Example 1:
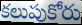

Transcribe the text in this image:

కలుపుకోరు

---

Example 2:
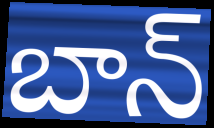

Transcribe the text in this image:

బాన్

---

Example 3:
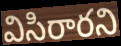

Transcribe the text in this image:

విసిరారని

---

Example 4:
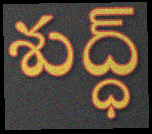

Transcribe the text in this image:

శుద్ధ్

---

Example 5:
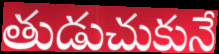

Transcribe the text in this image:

తుడుచుకునే